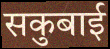
सकुबाई